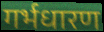
गर्भधारण